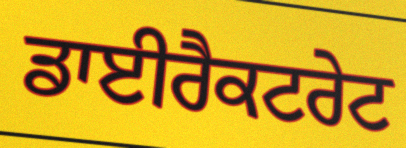
ਡਾਈਰੈਕਟਰੇਟ